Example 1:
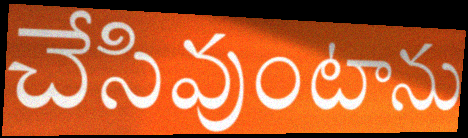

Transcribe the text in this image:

చేసివుంటాను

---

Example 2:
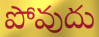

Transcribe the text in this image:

పోవుదు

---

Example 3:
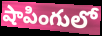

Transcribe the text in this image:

షాపింగులో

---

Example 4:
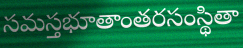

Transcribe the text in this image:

సమస్తభూతాంతరసంస్థితా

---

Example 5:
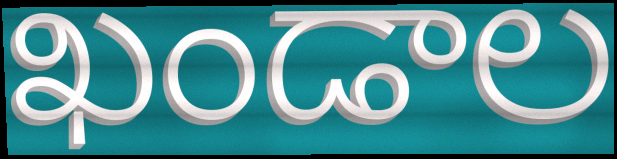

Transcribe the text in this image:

ఖండాల